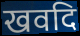
खवदि